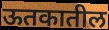
ऊतकातील